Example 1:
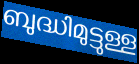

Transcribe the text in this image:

ബുദ്ധിമുട്ടുള്ള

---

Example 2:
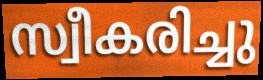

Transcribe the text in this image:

സ്വീകരിച്ചു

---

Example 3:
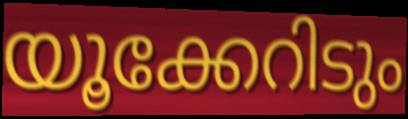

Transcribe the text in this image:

യൂക്കേറിടും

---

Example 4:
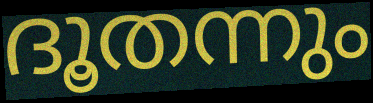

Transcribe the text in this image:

ദൂതന്നും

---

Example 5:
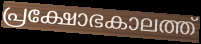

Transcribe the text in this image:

പ്രക്ഷോഭകാലത്ത്